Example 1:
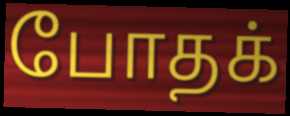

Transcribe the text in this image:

போதக்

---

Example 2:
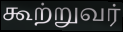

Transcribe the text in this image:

கூற்றுவர்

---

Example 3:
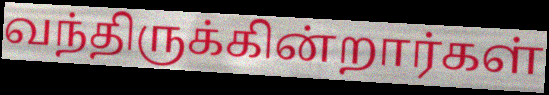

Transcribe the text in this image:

வந்திருக்கின்றார்கள்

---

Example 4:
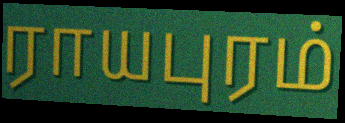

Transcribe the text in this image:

ராயபுரம்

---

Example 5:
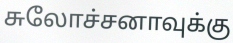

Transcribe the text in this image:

சுலோச்சனாவுக்கு